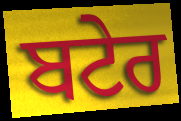
ਬਟੇਰ